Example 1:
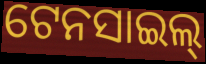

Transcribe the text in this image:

ଟେନସାଇଲ୍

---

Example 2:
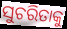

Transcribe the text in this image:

ସୁଚରିତାକୁ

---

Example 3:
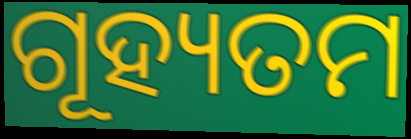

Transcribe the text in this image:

ଗୂହ୍ୟତମ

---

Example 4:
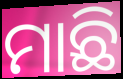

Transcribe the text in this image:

ମାଛି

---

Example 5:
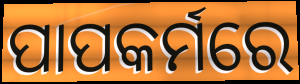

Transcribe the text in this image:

ପାପକର୍ମରେ